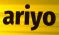
ariyo